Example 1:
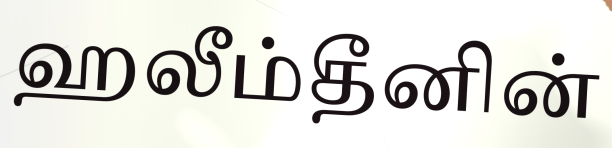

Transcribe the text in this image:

ஹலீம்தீனின்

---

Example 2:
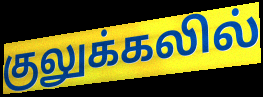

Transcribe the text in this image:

குலுக்கலில்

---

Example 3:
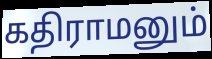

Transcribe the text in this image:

கதிராமனும்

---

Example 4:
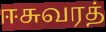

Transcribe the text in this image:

ஈசுவரத்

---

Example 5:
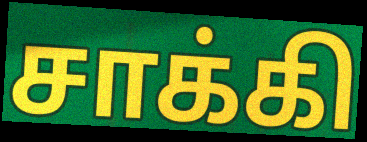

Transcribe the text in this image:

சாக்கி